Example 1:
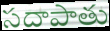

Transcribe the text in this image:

సదాపాతు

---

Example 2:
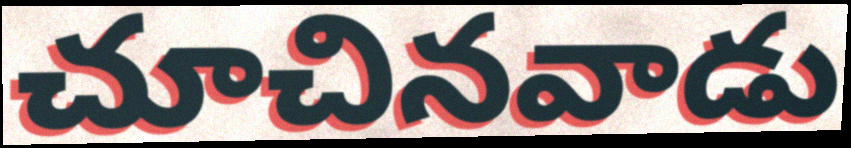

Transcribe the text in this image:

చూచినవాడు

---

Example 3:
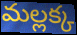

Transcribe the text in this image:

మల్లక్క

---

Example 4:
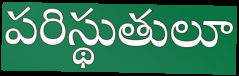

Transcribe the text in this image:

పరిస్థుతులూ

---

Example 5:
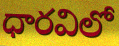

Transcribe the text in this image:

ధారవిలో